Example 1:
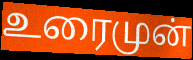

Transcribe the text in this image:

உரைமுன்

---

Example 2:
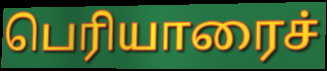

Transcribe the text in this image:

பெரியாரைச்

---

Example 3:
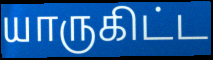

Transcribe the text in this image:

யாருகிட்ட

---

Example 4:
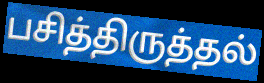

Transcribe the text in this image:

பசித்திருத்தல்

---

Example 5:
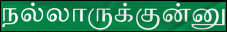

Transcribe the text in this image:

நல்லாருக்குன்னு